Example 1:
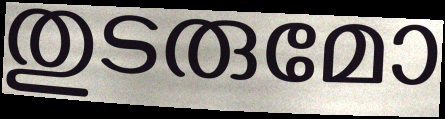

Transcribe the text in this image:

തുടരുമോ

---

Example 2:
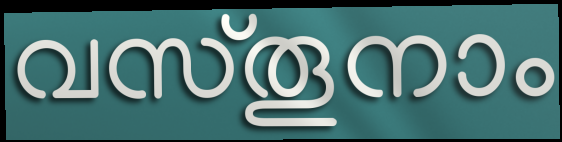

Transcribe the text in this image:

വസ്തൂനാം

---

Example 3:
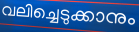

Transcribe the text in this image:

വലിച്ചെടുക്കാനും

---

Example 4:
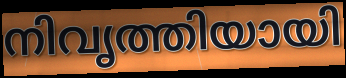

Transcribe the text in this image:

നിവൃത്തിയായി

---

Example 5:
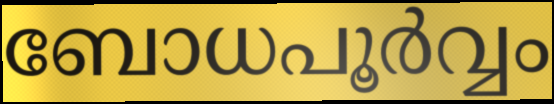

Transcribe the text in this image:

ബോധപൂർവ്വം